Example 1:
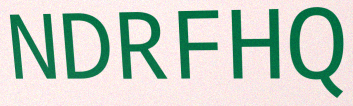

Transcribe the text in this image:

NDRFHQ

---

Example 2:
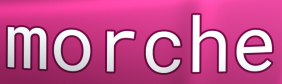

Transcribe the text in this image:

morche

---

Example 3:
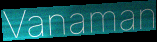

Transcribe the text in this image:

Vanaman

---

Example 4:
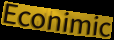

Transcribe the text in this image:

Econimic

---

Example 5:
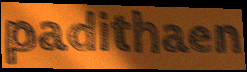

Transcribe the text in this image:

padithaen